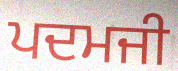
ਪਦਮਜੀ